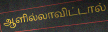
ஆளில்லாவிட்டால்